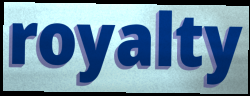
royalty